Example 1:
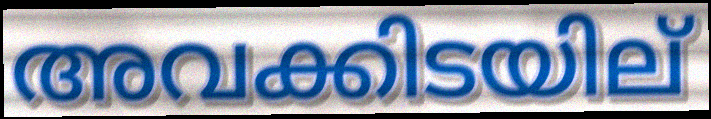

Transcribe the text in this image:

അവക്കിടയില്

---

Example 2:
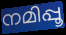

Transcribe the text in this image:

നമിപ്പൂ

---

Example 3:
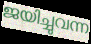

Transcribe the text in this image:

ജയിച്ചുവന്ന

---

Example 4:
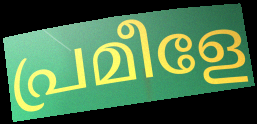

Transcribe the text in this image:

പ്രമീളേ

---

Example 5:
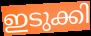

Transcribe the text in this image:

ഇടുക്കി